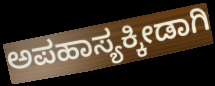
ಅಪಹಾಸ್ಯಕ್ಕೀಡಾಗಿ